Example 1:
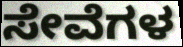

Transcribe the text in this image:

ಸೇವೆಗಳ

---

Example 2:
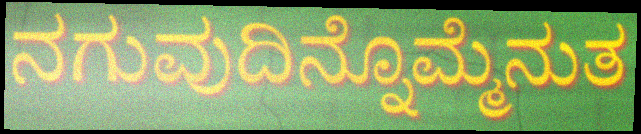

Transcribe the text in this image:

ನಗುವುದಿನ್ನೊಮ್ಮೆನುತ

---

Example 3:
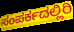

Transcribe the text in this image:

ಸಂಪರ್ಕದಲ್ಲಿರಿ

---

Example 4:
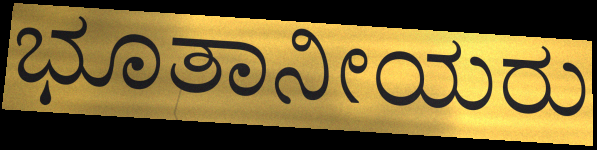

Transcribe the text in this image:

ಭೂತಾನೀಯರು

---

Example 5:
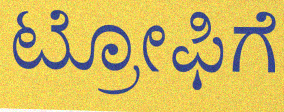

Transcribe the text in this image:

ಟ್ರೋಫಿಗೆ